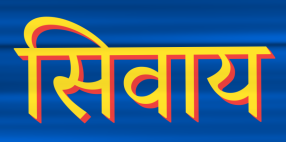
सिवाय